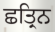
ਛਤ੍ਰਿਨ